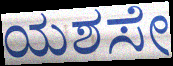
ಯಶಸೇ